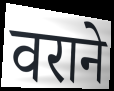
वराने